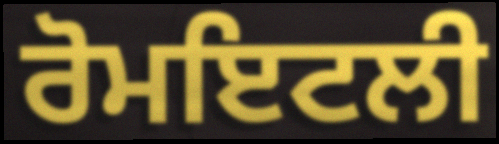
ਰੋਮਇਟਲੀ